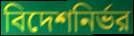
বিদেশনির্ভর